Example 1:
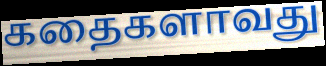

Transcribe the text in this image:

கதைகளாவது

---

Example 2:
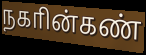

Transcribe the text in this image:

நகரின்கண்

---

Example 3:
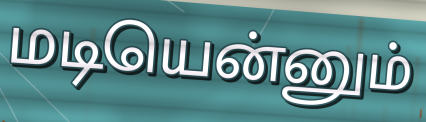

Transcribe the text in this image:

மடியென்னும்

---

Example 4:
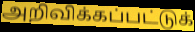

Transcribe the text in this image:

அறிவிக்கப்பட்டுக்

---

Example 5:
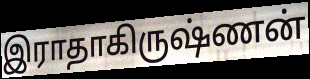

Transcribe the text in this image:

இராதாகிருஷ்ணன்